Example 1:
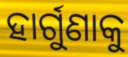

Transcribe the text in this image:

ହାର୍ଗୁଣାକୁ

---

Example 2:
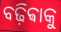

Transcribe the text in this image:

ବଢ଼ିଵାକୁ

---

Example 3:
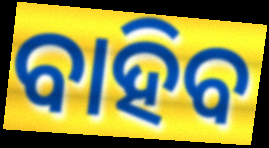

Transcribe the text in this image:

ବାହିବ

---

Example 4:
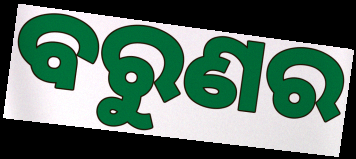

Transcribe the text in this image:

ବରୁଣର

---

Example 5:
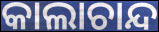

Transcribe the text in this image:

କାଲାଚାନ୍ଦ